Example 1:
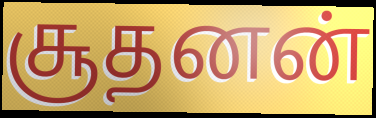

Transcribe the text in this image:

சூதனன்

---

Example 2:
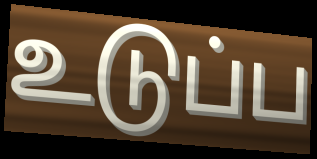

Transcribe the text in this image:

உடுப்ப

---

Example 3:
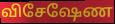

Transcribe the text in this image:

விசேஷேண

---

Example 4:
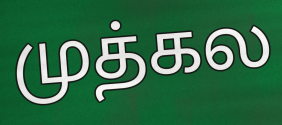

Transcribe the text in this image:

முத்கல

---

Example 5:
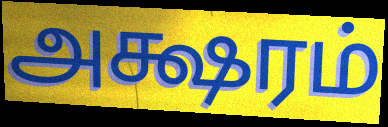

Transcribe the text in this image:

அக்ஷரம்